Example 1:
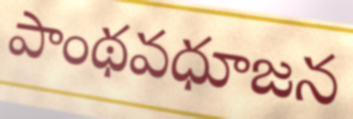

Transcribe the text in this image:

పాంథవధూజన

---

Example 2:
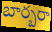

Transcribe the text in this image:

బార్బరా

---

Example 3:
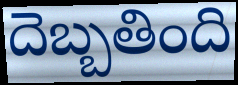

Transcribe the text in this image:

దెబ్బతింది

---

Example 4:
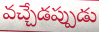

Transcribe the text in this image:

వచ్చేడప్పుడు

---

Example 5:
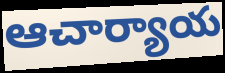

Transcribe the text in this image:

ఆచార్యాయ